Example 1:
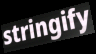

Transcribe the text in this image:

stringify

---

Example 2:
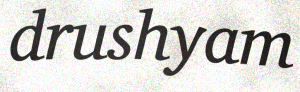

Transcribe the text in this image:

drushyam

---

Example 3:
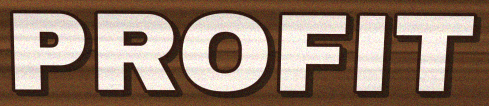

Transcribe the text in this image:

PROFIT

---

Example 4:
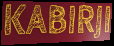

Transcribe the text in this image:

KABIRJI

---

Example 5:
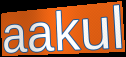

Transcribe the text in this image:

aakul